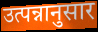
उत्पन्नानुसार